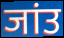
जांउ